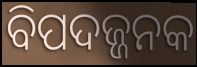
ବିପଦଜ୍ଜନକ